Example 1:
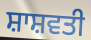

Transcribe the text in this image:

ਸ਼ਾਸ਼ਵਤੀ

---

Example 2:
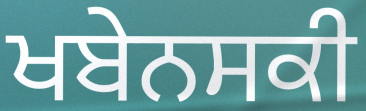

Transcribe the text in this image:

ਖਬੇਨਸਕੀ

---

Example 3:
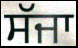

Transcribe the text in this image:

ਸੱਜਾ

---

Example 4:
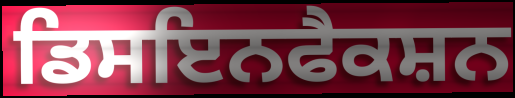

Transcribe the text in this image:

ਡਿਸਇਨਫੈਕਸ਼ਨ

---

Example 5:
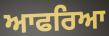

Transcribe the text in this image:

ਆਫਰਿਆ